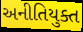
અનીતિયુક્ત